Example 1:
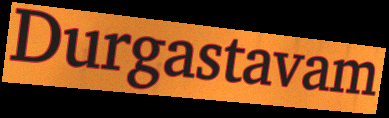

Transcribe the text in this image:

Durgastavam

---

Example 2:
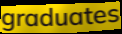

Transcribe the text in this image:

graduates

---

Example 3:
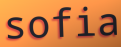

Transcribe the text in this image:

sofia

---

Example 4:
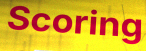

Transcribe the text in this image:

Scoring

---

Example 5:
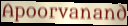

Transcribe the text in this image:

Apoorvanand